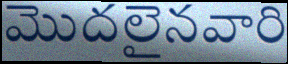
మొదలైనవారి